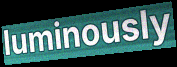
luminously